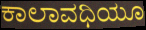
ಕಾಲಾವಧಿಯೂ